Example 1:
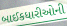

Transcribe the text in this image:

બાઈકધારીઓની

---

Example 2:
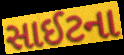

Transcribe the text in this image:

સાઈટના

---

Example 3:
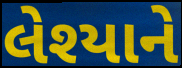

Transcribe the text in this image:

લેશ્યાને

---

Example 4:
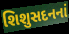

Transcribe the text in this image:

શિશુસદનનાં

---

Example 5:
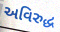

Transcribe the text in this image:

અવિરુદ્ધ